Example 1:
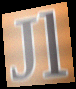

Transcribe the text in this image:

Jl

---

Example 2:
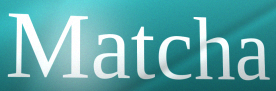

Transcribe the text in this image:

Matcha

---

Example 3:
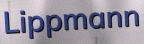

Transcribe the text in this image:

Lippmann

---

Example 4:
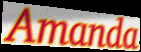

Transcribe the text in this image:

Amanda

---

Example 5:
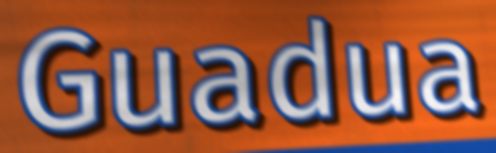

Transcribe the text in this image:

Guadua